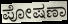
ಪೋಷಣಾ